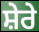
ਸ਼ੇਰੇ